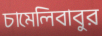
চামেলিবাবুর